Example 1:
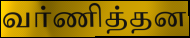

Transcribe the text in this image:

வர்ணித்தன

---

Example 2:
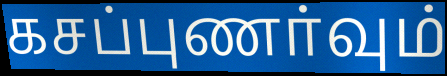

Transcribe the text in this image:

கசப்புணர்வும்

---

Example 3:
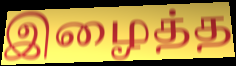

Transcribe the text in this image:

இழைத்த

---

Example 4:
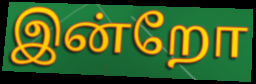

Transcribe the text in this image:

இன்றோ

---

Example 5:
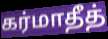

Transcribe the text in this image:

கர்மாதீத்